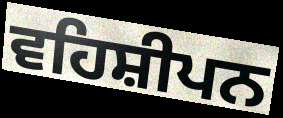
ਵਹਿਸ਼ੀਪਨ